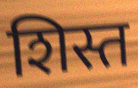
शिस्त